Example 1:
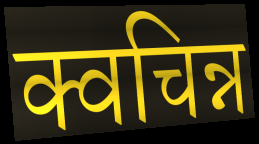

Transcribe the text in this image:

क्वचिन्न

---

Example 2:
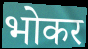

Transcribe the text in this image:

भोकर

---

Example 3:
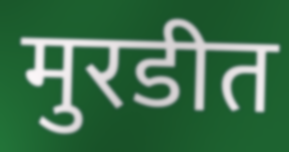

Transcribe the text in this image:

मुरडीत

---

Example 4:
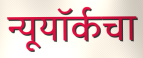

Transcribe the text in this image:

न्यूयॉर्कचा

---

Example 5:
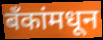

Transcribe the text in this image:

बॅंकांमधून